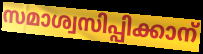
സമാശ്വസിപ്പിക്കാന്